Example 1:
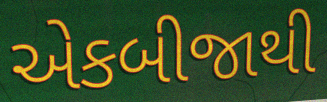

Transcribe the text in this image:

એકબીજાથી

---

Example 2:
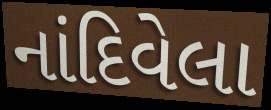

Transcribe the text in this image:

નાંદિવેલા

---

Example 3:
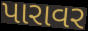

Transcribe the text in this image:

પારાવર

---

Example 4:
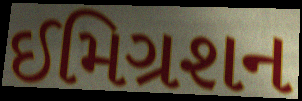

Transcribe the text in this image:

ઈમિગ્રશન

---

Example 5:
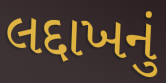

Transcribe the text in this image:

લદ્દાખનું